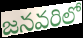
జనవరిలో